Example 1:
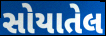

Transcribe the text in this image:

સોયાતેલ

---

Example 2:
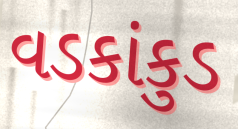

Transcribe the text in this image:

વડકાંકુડ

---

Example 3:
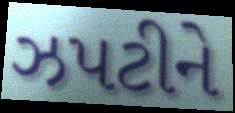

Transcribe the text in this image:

ઝપટીને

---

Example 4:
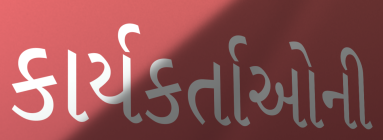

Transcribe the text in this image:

કાર્યકર્તાઓની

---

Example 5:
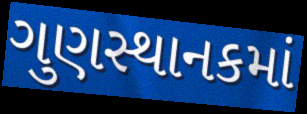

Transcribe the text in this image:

ગુણસ્થાનકમાં